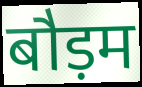
बौड़म